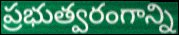
ప్రభుత్వరంగాన్ని